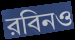
রবিনও